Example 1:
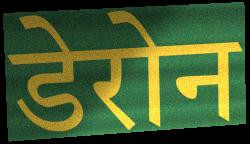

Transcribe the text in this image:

डेरोन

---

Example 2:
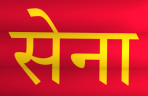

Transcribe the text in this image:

सेना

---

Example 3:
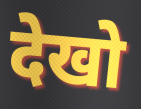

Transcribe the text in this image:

देखो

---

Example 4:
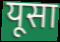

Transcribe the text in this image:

यूसा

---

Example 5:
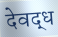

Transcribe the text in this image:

देवद्ध